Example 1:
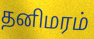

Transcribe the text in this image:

தனிமரம்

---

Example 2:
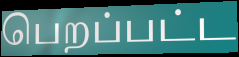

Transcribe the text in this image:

பெறப்பட்ட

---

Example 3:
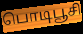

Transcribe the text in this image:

பொடிபூசி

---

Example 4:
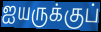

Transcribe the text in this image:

ஐயருக்குப்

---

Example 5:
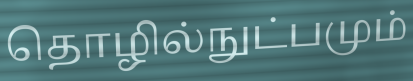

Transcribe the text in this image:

தொழில்நுட்பமும்